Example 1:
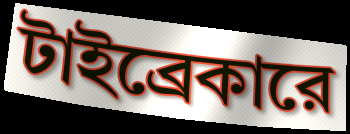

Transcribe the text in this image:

টাইব্রেকারে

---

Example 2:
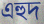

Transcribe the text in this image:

এহুদ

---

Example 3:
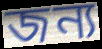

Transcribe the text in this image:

জন্য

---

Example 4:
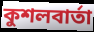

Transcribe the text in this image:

কুশলবার্তা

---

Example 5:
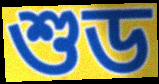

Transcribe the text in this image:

শুড